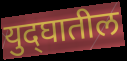
युद्घातील